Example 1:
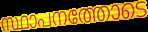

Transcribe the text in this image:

സ്ഥാപനത്തോടെ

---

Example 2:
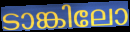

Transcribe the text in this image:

ടാങ്കിലോ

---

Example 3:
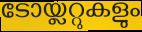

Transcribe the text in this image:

ടോയ്ലറ്റുകളും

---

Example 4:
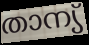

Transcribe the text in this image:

താന്യ്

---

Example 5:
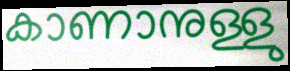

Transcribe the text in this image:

കാണാനുള്ളു